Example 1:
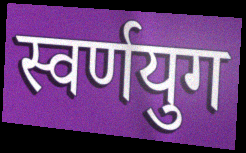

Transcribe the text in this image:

स्वर्णयुग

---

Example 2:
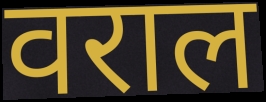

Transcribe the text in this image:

वराल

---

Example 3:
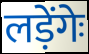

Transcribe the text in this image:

लड़ेंगेः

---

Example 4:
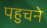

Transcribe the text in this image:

पहुचने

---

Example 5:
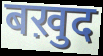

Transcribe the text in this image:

बख़ुद